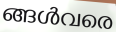
ങ്ങൾവരെ